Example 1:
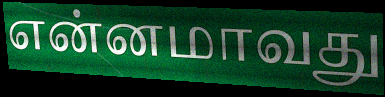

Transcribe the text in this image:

என்னமாவது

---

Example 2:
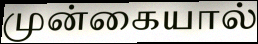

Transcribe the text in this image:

முன்கையால்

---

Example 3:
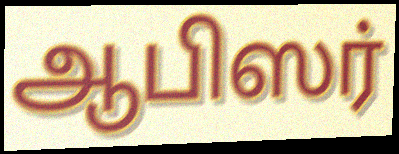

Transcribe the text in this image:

ஆபிஸர்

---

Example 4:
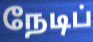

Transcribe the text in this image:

நேடிப்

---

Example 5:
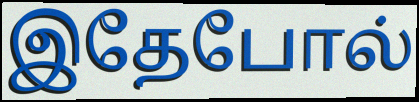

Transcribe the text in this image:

இதேபோல்